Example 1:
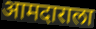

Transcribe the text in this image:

आमदाराला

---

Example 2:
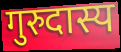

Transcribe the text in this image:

गुरुदास्य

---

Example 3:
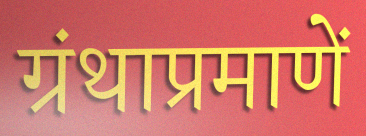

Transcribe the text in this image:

ग्रंथाप्रमाणें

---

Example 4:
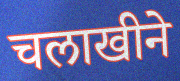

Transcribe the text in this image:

चलाखीने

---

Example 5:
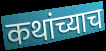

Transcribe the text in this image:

कथांच्याच